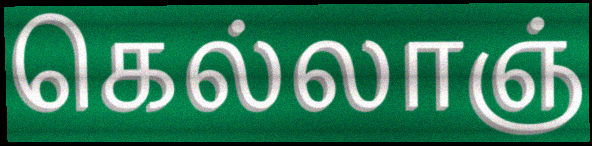
கெல்லாஞ்